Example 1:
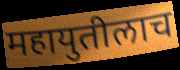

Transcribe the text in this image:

महायुतीलाच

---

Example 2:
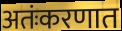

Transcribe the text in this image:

अतंःकरणात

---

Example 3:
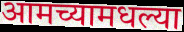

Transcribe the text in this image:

आमच्यामधल्या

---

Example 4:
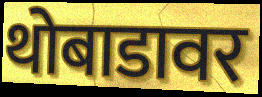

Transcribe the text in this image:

थोबाडावर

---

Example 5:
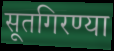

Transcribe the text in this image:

सूतगिरण्या